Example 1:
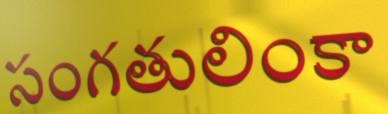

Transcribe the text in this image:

సంగతులింకా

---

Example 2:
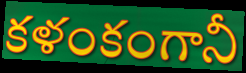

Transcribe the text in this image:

కళంకంగానీ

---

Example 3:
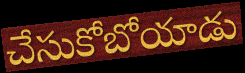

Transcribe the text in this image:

చేసుకోబోయాడు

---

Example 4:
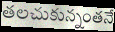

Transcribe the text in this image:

తలచుకున్నంతనే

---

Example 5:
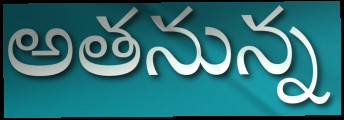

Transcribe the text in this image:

అతనున్న